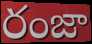
రంజా